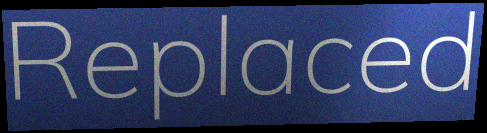
Replaced